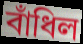
বাঁধিল